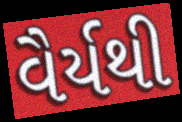
વૈર્યથી